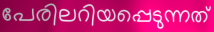
പേരിലറിയപ്പെടുന്നത്